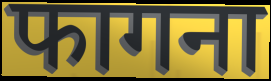
फागना